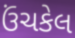
ઉંચકેલ